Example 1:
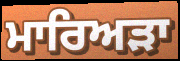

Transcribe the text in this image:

ਮਾਰਿਅੜਾ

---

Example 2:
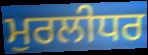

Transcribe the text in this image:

ਮੁਰਲੀਧਰ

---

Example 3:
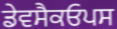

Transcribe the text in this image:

ਡੇਵਸੈਕਓਪਸ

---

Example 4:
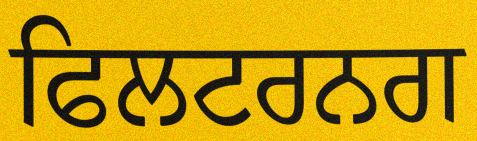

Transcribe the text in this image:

ਫਿਲਟਰਨਗ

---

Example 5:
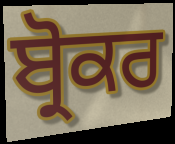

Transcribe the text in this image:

ਬ੍ਰੋਕਰ